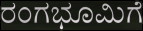
ರಂಗಭೂಮಿಗೆ